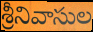
శ్రీనివాసుల